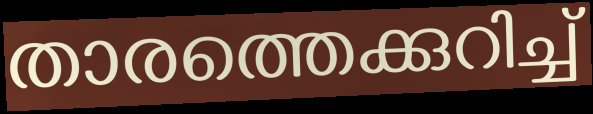
താരത്തെക്കുറിച്ച്